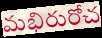
మభిరురోచ